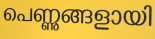
പെണ്ണുങ്ങളായി